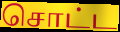
சொட்ட